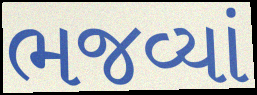
ભજવ્યાં